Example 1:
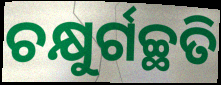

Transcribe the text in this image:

ଚକ୍ଷୁର୍ଗଚ୍ଛତି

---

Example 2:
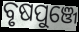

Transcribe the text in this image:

ବୃଷପୁଞ୍ଜେ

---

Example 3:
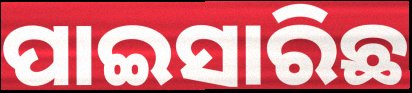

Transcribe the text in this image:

ପାଇସାରିଛ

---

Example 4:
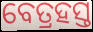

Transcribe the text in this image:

ବେତ୍ରହସ୍ତ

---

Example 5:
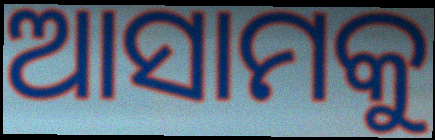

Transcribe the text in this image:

ଆସାମକୁ